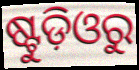
ଷ୍ଟୁଡ଼ିଓରୁ